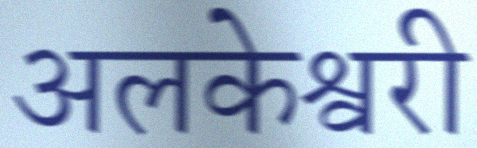
अलकेश्वरी